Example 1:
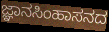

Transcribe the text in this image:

ಜ್ಞಾನಸಿಂಹಾಸನದ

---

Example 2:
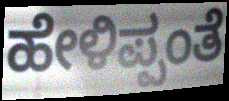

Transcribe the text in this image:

ಹೇಳಿಪ್ಪಂತೆ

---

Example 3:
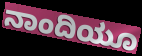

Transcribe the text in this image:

ನಾಂದಿಯೂ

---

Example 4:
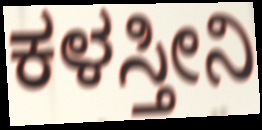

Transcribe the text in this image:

ಕಳಸ್ತೀನಿ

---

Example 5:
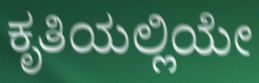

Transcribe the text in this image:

ಕೃತಿಯಲ್ಲಿಯೇ